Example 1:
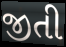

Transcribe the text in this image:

જીતી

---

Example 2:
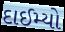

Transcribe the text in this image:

દાઈમ્યો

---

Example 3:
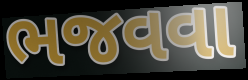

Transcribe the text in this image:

ભજવવા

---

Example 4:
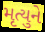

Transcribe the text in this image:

મૃત્યુને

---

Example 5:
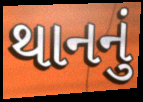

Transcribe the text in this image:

થાનનું